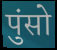
पुंसो